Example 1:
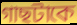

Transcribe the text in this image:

গাছটাকে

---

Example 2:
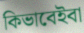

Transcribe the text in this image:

কিভাবেইবা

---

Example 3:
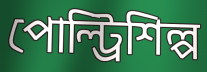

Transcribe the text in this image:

পোল্ট্রিশিল্প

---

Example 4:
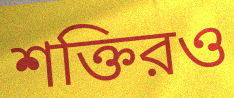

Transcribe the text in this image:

শক্তিরও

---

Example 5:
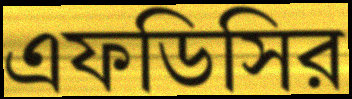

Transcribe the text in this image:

এফডিসির